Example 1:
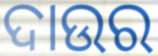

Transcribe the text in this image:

ଦାଉର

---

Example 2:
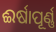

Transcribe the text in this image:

ଈର୍ଷାପୂର୍ଣ୍ଣ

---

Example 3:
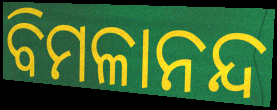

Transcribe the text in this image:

ବିମଳାନନ୍ଦ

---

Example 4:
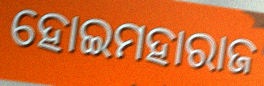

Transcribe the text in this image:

ହୋଇମହାରାଜ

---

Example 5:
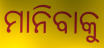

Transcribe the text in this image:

ମାନିବାକୁ